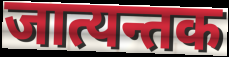
जात्यन्तक